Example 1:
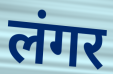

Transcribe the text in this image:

लंगर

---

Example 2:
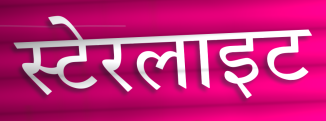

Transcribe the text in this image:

स्टेरलाइट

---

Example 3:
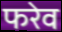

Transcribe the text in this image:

फरेव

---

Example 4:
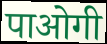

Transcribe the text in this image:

पाओगी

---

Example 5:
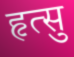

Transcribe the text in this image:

हृत्सु